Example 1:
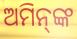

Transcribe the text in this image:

ଅମିନ୍‌ଙ୍କ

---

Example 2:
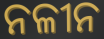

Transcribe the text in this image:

ନଳୀନ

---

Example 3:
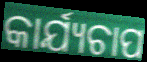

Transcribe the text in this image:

କାର୍ଯ୍ୟଚାପ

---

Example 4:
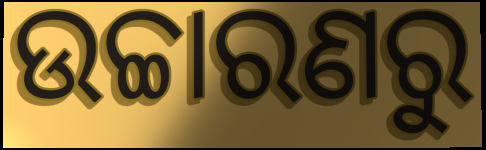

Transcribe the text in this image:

ଉଚ୍ଚାରଣରୁ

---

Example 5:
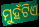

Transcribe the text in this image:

ମୁହଁଟିଏ